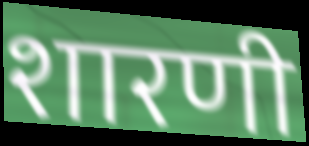
शारणी